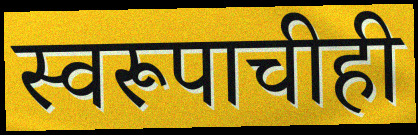
स्वरूपाचीही